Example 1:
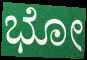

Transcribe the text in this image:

ಭೋ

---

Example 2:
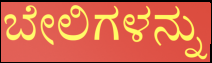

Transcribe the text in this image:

ಬೇಲಿಗಳನ್ನು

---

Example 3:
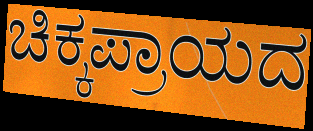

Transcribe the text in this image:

ಚಿಕ್ಕಪ್ರಾಯದ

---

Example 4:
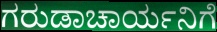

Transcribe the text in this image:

ಗರುಡಾಚಾರ್ಯನಿಗೆ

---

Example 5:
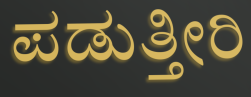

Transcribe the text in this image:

ಪಡುತ್ತೀರಿ